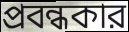
প্রবন্ধকার